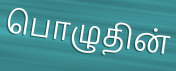
பொழுதின்